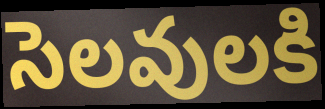
సెలవులకి